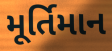
મૂર્તિમાન